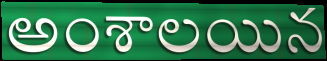
అంశాలయిన